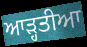
ਆੜ੍ਹਤੀਆ